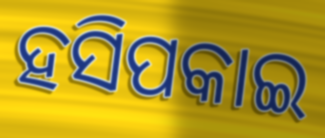
ହସିପକାଇ